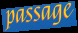
passage